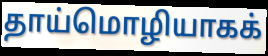
தாய்மொழியாகக்